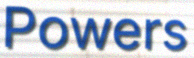
Powers